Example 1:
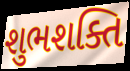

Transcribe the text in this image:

શુભશક્તિ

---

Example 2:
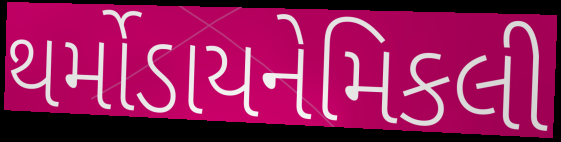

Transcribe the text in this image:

થર્મોડાયનેમિકલી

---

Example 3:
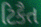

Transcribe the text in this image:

ટિકૈત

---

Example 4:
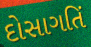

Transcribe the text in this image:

દોસાગતિં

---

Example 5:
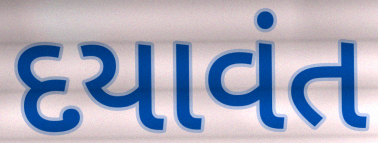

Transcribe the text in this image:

દયાવંત